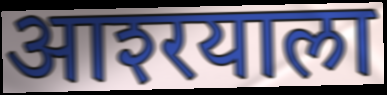
आश्रयाला